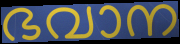
ഭവാന